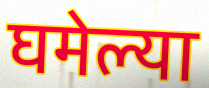
घमेल्या